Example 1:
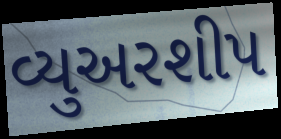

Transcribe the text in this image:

વ્યુઅરશીપ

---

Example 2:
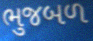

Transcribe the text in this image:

ભુજબળ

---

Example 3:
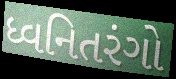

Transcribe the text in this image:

ધ્વનિતરંગો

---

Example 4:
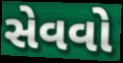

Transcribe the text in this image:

સેવવો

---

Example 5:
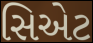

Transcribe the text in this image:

સિએટ